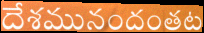
దేశమునందంతట